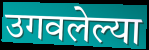
उगवलेल्या